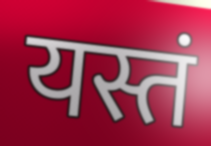
यस्तं